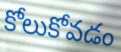
కోలుకోవడం